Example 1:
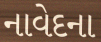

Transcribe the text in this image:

નાવેદના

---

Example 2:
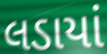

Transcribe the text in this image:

લડાયાં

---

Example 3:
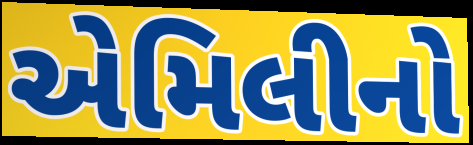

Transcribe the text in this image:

એમિલીનો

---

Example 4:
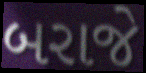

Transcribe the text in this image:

બરાજે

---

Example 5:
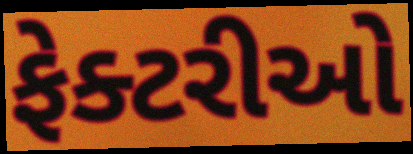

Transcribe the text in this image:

ફેક્ટરીઓ